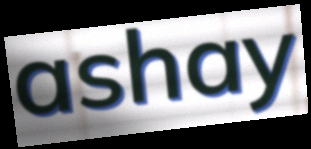
ashay